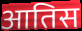
आतिस